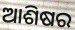
ଆଶିଷର